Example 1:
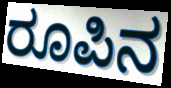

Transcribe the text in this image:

ರೂಪಿನ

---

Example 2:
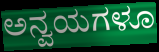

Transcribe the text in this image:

ಅನ್ವಯಗಳೂ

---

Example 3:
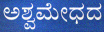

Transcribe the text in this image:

ಅಶ್ವಮೇಧದ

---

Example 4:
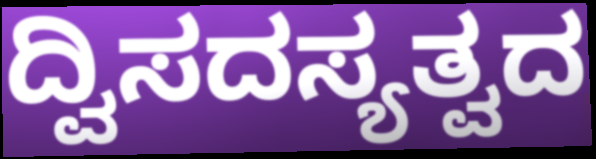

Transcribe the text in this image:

ದ್ವಿಸದಸ್ಯತ್ವದ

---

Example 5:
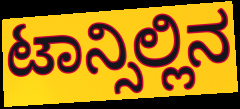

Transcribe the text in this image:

ಟಾನ್ಸಿಲ್ಲಿನ